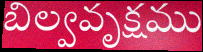
బిల్వవృక్షము